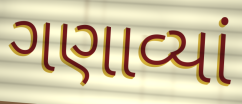
ગણાવ્યાં